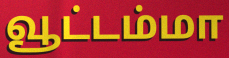
வூட்டம்மா